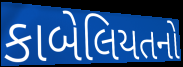
કાબેલિયતનો